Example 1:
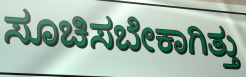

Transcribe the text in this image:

ಸೂಚಿಸಬೇಕಾಗಿತ್ತು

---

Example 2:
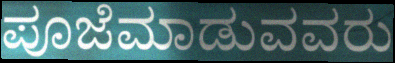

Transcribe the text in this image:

ಪೂಜೆಮಾಡುವವರು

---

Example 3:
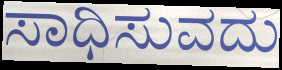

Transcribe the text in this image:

ಸಾಧಿಸುವದು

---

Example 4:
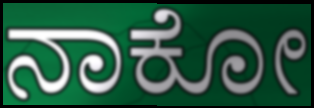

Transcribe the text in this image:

ನಾಕೋ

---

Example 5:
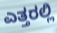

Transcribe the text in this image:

ಎತ್ತರಲ್ಲಿ